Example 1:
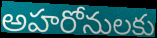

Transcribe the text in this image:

అహరోనులకు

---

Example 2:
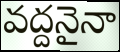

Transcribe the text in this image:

వద్దనైనా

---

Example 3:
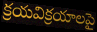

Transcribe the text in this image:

క్రయవిక్రయాలపై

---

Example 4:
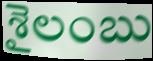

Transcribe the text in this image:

శైలంబు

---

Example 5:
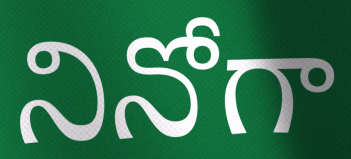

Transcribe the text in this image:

నినోగా